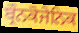
ਬ੍ਰੌਨਕੋਜੇਨਿਕ